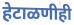
हेटाळणीही